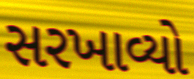
સરખાવ્યો